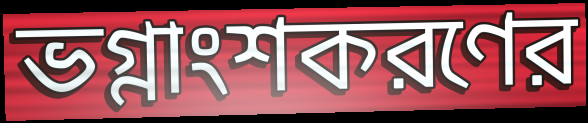
ভগ্নাংশকরণের